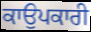
ਕਾਉਪਕਾਰੀ